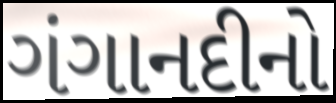
ગંગાનદીનો